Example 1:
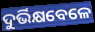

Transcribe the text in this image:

ଦୁର୍ଭିକ୍ଷବେଳେ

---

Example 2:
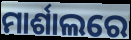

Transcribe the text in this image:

ମାର୍ଶାଲରେ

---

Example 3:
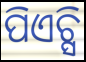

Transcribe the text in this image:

ପିଏଚ୍ସି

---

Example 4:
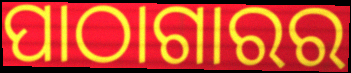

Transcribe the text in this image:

ପାଠାଗାରର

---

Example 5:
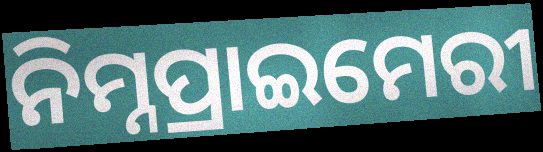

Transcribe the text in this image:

ନିମ୍ନପ୍ରାଇମେରୀ